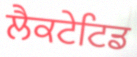
ਲੈਕਟੇਟਿਡ